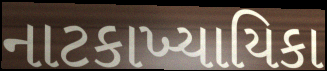
નાટકાખ્યાયિકા